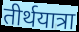
तीर्थयात्रा